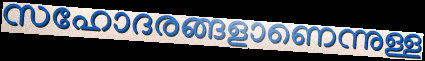
സഹോദരങ്ങളാണെന്നുള്ള